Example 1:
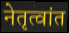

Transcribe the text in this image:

नेतृत्वांत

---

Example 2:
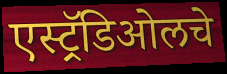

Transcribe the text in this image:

एस्ट्रॅडिओलचे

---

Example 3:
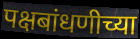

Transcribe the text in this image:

पक्षबांधणीच्या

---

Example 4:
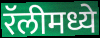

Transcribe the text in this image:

रॅलीमध्ये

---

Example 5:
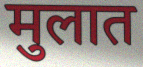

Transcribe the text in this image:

मुलात